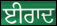
ਈਰਾਦ